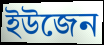
ইউজেন